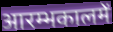
आरम्भकालमें